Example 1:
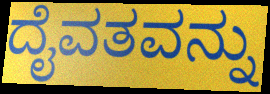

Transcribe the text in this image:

ದೈವತವನ್ನು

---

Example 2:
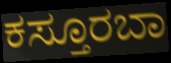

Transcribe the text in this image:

ಕಸ್ತೂರಬಾ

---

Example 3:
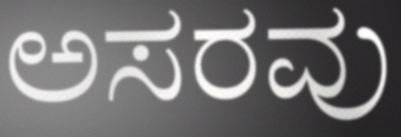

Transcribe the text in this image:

ಅಸರವು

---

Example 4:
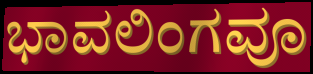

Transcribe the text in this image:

ಭಾವಲಿಂಗವೂ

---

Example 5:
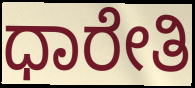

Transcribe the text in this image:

ಧಾರೇತಿ